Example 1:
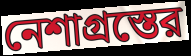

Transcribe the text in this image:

নেশাগ্রস্তের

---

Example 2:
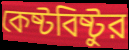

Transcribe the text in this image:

কেষ্টবিষ্টুর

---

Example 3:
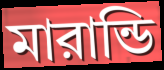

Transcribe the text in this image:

মারান্ডি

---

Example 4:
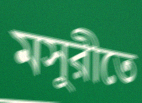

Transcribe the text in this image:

মসুরীতে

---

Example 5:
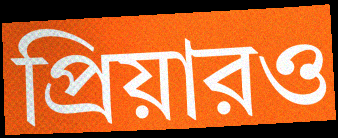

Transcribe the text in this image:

প্রিয়ারও